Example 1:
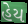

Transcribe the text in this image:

હેય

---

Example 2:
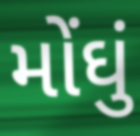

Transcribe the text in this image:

મોંઘું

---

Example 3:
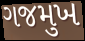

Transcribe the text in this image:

ગજમુખ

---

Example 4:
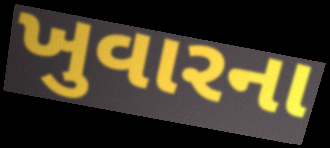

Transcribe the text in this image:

ખુવારના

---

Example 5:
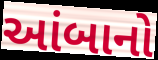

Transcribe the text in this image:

આંબાનો